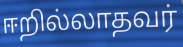
ஈறில்லாதவர்